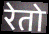
रेतो